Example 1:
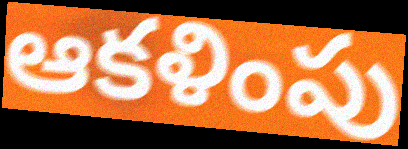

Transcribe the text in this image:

ఆకళింపు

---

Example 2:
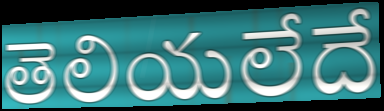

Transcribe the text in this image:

తెలియలేదే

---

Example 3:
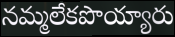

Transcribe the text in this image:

నమ్మలేకపొయ్యారు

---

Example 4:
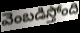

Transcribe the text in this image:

వెంబడిస్తోంది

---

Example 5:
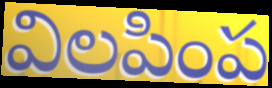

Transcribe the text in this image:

విలపింప